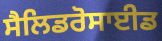
ਸੈਲਿਡਰੋਸਾਈਡ